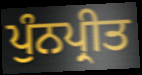
ਪੁੰਨਪ੍ਰੀਤ